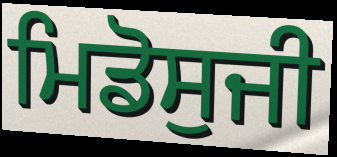
ਮਿਡੋਸੁਜੀ